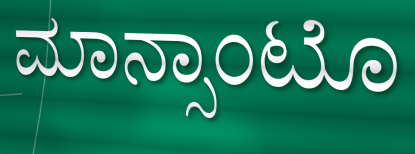
ಮಾನ್ಸಾಂಟೊ